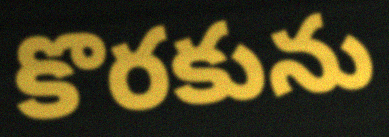
కొరకును